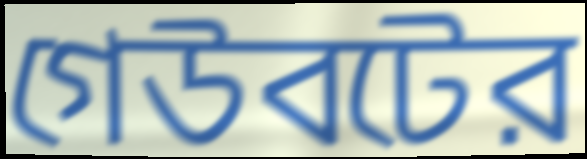
গেউবটের